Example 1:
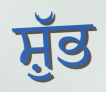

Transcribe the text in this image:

ਸ਼ੁੱਭ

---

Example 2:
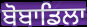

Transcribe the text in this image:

ਬੋਬਾਡਿਲਾ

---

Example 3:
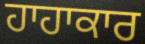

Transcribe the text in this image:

ਹਾਹਾਕਾਰ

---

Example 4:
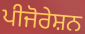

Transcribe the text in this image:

ਪੀਜੋਰੇਸ਼ਨ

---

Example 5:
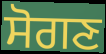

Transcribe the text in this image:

ਸੋਗਣ